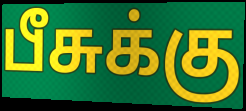
பீசுக்கு